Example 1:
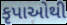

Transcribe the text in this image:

કૃપાઓથી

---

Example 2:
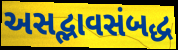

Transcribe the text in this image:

અસદ્ભાવસંબદ્ધ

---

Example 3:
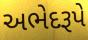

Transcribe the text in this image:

અભેદરૂપે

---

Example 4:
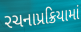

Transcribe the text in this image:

રચનાપ્રક્રિયામાં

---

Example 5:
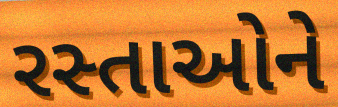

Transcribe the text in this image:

રસ્તાઓને